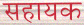
सहायक